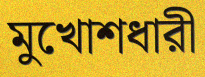
মুখোশধারী